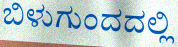
ಬಿಳುಗುಂದದಲ್ಲಿ